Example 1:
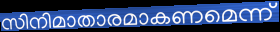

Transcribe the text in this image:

സിനിമാതാരമാകണമെന്ന്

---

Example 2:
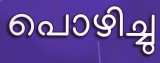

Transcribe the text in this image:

പൊഴിച്ചു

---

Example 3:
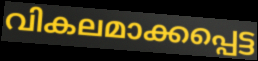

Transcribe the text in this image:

വികലമാക്കപ്പെട്ട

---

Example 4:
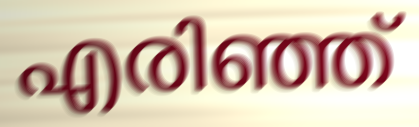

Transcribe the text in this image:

എരിഞ്ഞ്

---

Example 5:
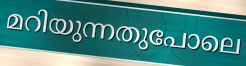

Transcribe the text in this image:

മറിയുന്നതുപോലെ